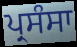
ਪ੍ਰਸੰਸਾ